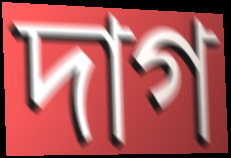
দাগ